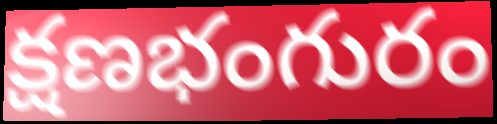
క్షణభంగురం